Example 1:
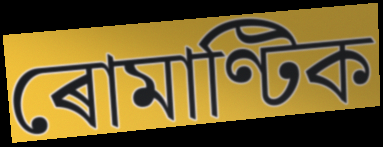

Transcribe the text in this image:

ৰোমাণ্টিক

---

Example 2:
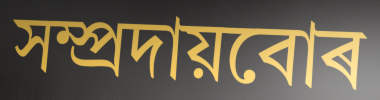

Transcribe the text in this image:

সম্প্ৰদায়বোৰ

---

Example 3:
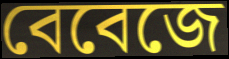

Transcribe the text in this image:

বেবেজে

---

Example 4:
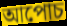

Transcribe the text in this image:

আপোচ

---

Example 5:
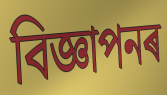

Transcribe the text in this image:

বিজ্ঞাপনৰ